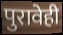
पुरावेही